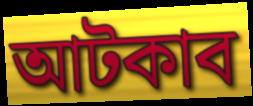
আটকাব